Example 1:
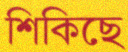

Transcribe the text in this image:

শিকিছে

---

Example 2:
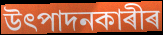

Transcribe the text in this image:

উৎপাদনকাৰীৰ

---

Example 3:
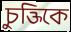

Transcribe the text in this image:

চুক্তিকে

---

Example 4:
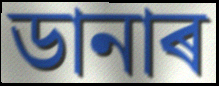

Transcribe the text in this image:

ডানাৰ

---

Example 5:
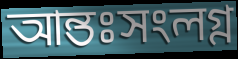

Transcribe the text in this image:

আন্তঃসংলগ্ন